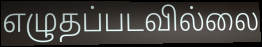
எழுதப்படவில்லை